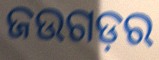
ଜଉଗଡ଼ର